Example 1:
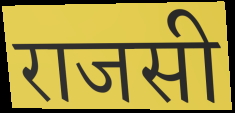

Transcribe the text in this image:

राजसी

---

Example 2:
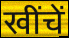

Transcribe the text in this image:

खींचें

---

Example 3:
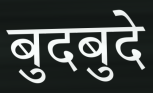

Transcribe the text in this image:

बुदबुदे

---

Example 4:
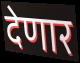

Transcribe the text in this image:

देणार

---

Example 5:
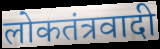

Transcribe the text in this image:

लोकतंत्रवादी